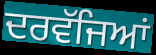
ਦਰਵੱਜਿਆਂ